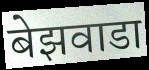
बेझवाडा